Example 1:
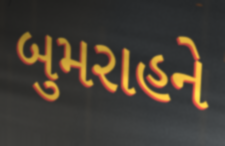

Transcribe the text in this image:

બુમરાહને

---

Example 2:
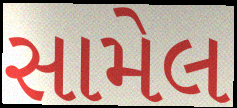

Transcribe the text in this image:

સામેલ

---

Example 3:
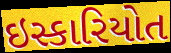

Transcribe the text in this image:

ઇસ્કારિયોત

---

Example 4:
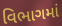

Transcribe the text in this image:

વિભાગમાં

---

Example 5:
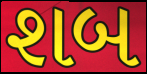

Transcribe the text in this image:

શબ